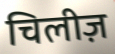
चिलीज़